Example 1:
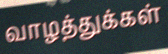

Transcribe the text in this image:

வாழத்துக்கள்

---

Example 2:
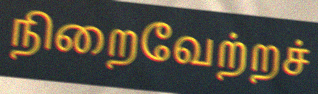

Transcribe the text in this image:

நிறைவேற்றச்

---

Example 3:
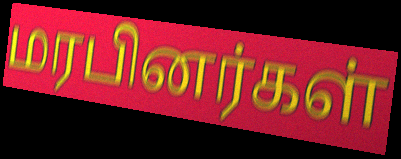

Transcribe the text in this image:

மரபினர்கள்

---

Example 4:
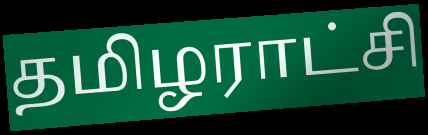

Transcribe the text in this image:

தமிழராட்சி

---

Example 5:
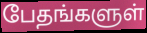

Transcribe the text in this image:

பேதங்களுள்